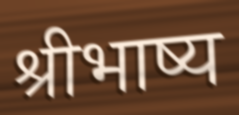
श्रीभाष्य